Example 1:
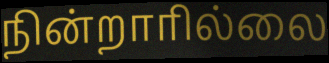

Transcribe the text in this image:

நின்றாரில்லை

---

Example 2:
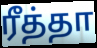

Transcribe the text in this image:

ரீத்தா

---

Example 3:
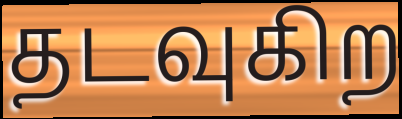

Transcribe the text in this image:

தடவுகிற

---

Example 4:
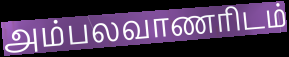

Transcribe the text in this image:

அம்பலவாணரிடம்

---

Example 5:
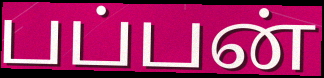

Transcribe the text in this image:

பப்பன்